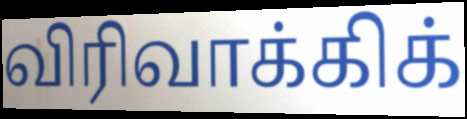
விரிவாக்கிக்